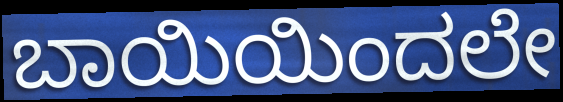
ಬಾಯಿಯಿಂದಲೇ